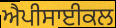
ਐਪੀਸਾਈਕਲ